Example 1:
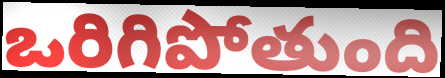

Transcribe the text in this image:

ఒరిగిపోతుంది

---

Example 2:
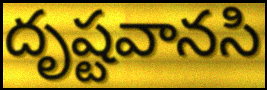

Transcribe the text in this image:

దృష్టవానసి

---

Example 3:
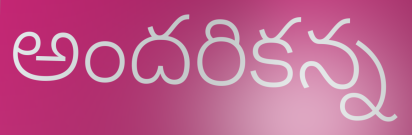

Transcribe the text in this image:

అందరికన్న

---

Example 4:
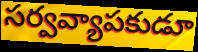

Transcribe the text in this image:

సర్వవ్యాపకుడూ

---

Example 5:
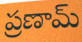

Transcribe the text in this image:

ప్రణామ్